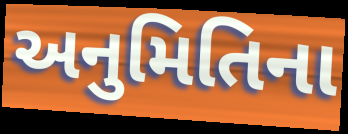
અનુમિતિના